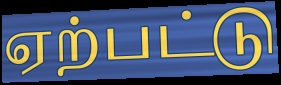
ஏற்பட்டு